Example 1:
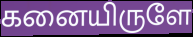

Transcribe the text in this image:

கனையிருளே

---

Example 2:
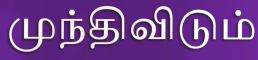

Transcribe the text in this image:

முந்திவிடும்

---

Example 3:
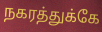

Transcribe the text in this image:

நகரத்துக்கே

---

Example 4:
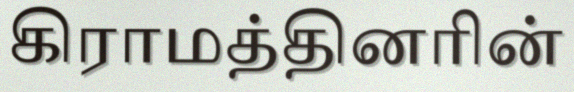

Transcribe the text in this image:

கிராமத்தினரின்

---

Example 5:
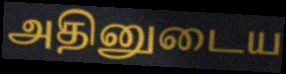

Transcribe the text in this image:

அதினுடைய